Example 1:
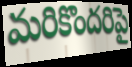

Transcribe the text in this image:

మరికొందరిపై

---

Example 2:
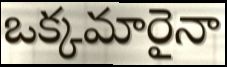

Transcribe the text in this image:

ఒక్కమారైనా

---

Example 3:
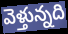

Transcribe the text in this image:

వెళ్తున్నది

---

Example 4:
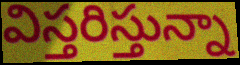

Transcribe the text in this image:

విస్తరిస్తున్నా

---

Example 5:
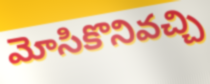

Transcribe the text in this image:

మోసికొనివచ్చి